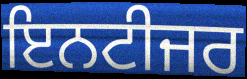
ਇਨਟੀਜਰ